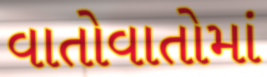
વાતોવાતોમાં